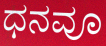
ಧನವೂ